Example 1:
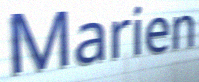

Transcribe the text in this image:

Marien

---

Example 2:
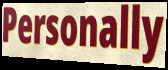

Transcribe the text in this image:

Personally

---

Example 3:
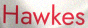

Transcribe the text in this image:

Hawkes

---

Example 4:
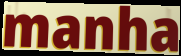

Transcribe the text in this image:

manha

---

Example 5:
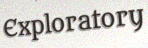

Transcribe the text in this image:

Exploratory